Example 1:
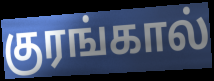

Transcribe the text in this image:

குரங்கால்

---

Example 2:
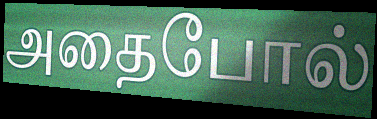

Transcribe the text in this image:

அதைபோல்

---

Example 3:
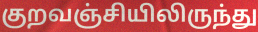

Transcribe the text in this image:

குறவஞ்சியிலிருந்து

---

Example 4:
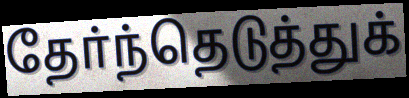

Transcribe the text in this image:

தேர்ந்தெடுத்துக்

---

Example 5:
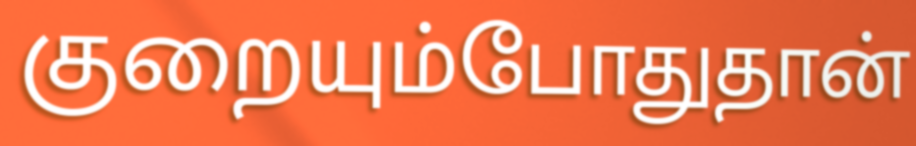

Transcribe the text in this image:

குறையும்போதுதான்